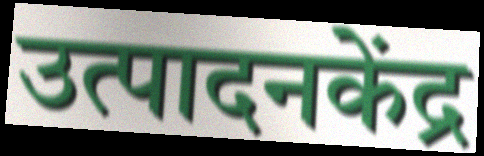
उत्पादनकेंद्र